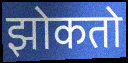
झोकतो